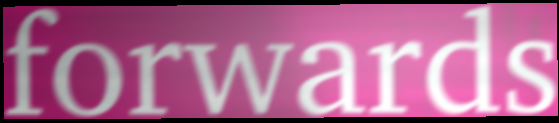
forwards